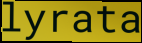
lyrata